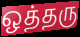
ஒத்தரு